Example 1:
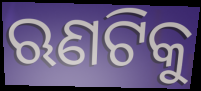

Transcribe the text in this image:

ଋଣଟିକୁ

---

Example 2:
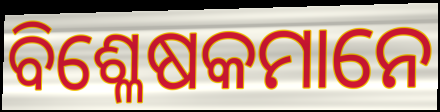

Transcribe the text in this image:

ବିଶ୍ଳେଷକମାନେ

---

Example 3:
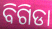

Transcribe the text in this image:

ବିଗିଡା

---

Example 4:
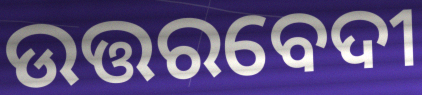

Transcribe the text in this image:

ଉତ୍ତରବେଦୀ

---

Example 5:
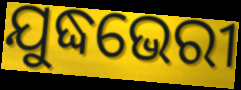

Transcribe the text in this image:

ଯୁଦ୍ଧଭେରୀ